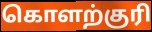
கொளற்குரி